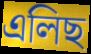
এলিছ